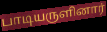
பாடியருளினார்